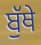
ਬੁੱਥੇ